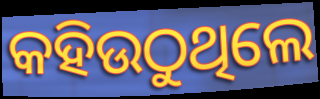
କହିଉଠୁଥିଲେ